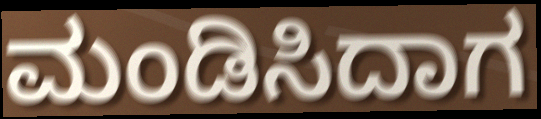
ಮಂಡಿಸಿದಾಗ